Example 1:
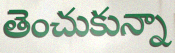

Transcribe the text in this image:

తెంచుకున్నా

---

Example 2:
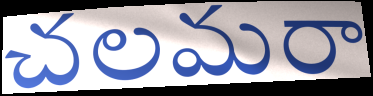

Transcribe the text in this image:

చలమరా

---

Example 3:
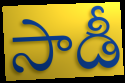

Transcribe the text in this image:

సాడీ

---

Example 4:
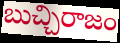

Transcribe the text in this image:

బుచ్చిరాజం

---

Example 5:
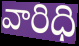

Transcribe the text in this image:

వారిధి